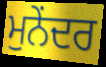
ਮੁਨੇਂਦਰ